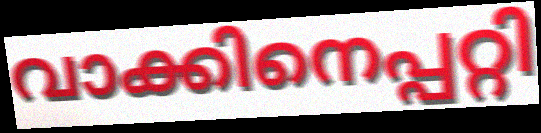
വാക്കിനെപ്പറ്റി